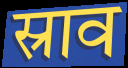
स्राव